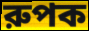
রুপক